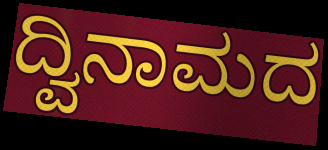
ದ್ವಿನಾಮದ